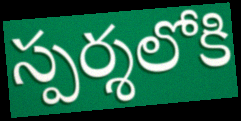
స్పర్శలోకి